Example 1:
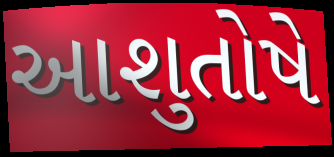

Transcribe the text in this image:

આશુતોષે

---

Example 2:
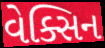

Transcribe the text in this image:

વેક્સિન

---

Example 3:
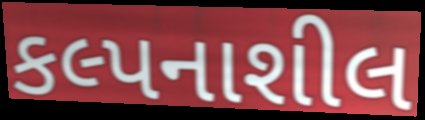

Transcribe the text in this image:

કલ્પનાશીલ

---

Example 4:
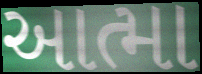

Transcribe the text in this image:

આત્મા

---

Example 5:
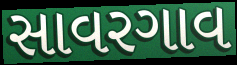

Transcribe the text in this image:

સાવરગાવ